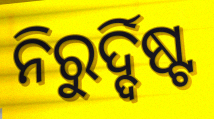
ନିରୁର୍ଦ୍ଦିଷ୍ଟ